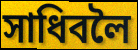
সাধিবলৈ